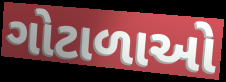
ગોટાળાઓ